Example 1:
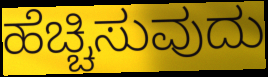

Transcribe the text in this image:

ಹೆಚ್ಚಿಸುವುದು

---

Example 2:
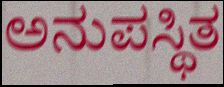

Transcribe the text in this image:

ಅನುಪಸ್ಥಿತ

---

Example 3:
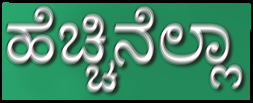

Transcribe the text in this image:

ಹೆಚ್ಚಿನೆಲ್ಲಾ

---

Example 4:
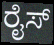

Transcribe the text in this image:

ರೈಸ್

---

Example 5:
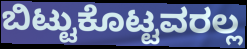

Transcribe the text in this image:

ಬಿಟ್ಟುಕೊಟ್ಟವರಲ್ಲ